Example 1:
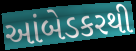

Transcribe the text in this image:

આંબેડકરથી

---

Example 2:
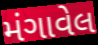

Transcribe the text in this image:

મંગાવેલ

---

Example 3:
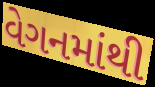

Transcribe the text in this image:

વેગનમાંથી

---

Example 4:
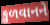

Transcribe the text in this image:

કુળવાનને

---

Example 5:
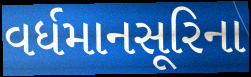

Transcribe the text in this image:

વર્ધમાનસૂરિના